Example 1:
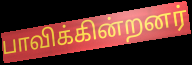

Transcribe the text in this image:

பாவிக்கின்றனர்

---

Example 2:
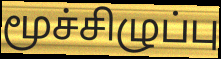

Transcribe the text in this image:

மூச்சிழுப்பு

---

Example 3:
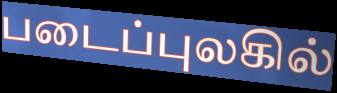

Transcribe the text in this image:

படைப்புலகில்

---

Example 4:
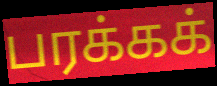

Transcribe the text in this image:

பரக்கக்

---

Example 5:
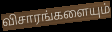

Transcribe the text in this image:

விசாரங்களையும்